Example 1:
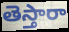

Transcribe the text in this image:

తెస్తారా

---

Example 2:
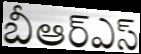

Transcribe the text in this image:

బీఆర్ఎస్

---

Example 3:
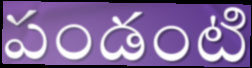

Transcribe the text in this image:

పండంటి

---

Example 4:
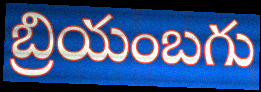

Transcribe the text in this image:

బ్రియంబగు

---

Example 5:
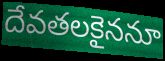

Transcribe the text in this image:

దేవతలకైననూ